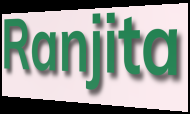
Ranjita